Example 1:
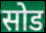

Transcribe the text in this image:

सोड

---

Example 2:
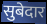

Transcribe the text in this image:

सुबेदार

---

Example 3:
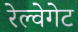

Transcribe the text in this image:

रेल्वेगेट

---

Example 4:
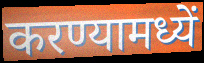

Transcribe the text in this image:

करण्यामध्यें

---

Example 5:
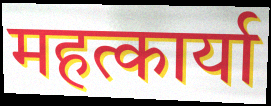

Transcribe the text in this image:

महत्कार्या